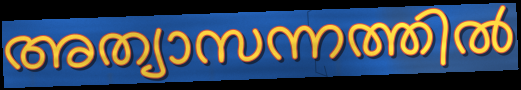
അത്യാസന്നത്തിൽ